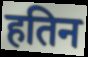
हतिन